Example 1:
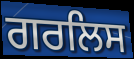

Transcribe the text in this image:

ਗਰਲਿਸ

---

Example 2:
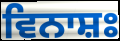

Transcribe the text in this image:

ਵਿਨਾਸ਼ਃ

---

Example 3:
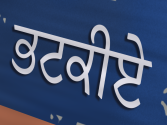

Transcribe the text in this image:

ਭਟਕੀਏ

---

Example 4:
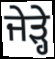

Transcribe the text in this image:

ਜੇੜ੍ਹੇ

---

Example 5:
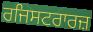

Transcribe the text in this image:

ਰਜਿਸਟਰਾਰਜ਼